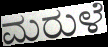
ಮರುಳೆ